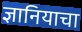
ज्ञानियाचा